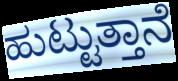
ಹುಟ್ಟುತ್ತಾನೆ